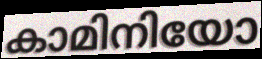
കാമിനിയോ